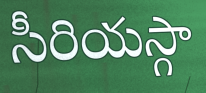
సీరియస్గా